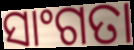
ସାଂଗତା